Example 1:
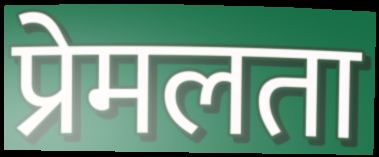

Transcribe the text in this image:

प्रेमलता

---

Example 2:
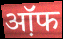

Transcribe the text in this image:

ऑ़फ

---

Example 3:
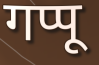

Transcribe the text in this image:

गप्पू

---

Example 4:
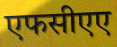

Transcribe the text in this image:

एफसीएए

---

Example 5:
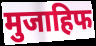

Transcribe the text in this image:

मुजाहिफ